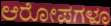
ಆರೋಪಗಳೂ